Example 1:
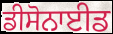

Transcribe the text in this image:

ਡੀਸੋਨਾਈਡ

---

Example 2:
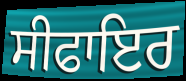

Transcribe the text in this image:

ਸੀਫਾਇਰ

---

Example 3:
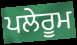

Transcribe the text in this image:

ਪਲੇਰੂਮ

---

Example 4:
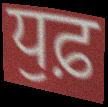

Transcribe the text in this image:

ਧੁਫ਼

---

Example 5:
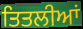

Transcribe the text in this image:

ਤਿਤਲੀਆਂ